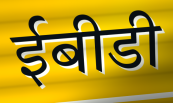
ईबीडी